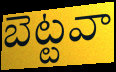
బెట్టవా